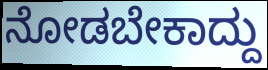
ನೋಡಬೇಕಾದ್ದು